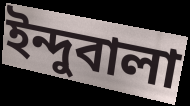
ইন্দুবালা